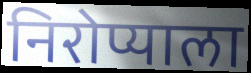
निरोप्याला